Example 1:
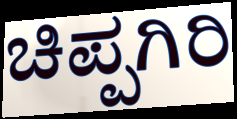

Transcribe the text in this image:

ಚಿಪ್ಪಗಿರಿ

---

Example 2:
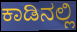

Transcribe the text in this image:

ಕಾಡಿನಲ್ಲಿ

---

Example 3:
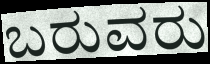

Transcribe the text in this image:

ಬರುವರು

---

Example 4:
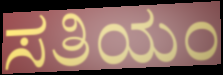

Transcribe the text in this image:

ಸತಿಯಂ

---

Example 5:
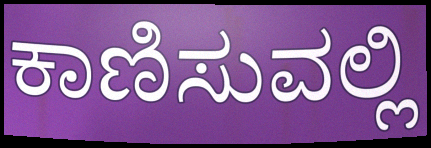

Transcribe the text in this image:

ಕಾಣಿಸುವಲ್ಲಿ